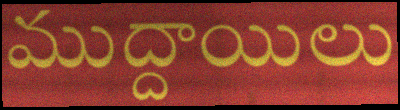
ముద్దాయిలు